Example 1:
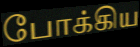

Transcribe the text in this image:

போக்கிய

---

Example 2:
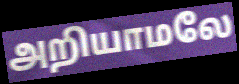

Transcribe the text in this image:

அறியாமலே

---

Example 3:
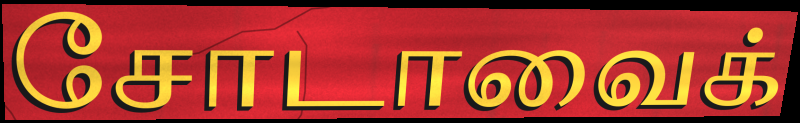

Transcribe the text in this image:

சோடாவைக்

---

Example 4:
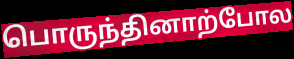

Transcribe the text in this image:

பொருந்தினாற்போல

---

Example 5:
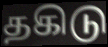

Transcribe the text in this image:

தகிடு